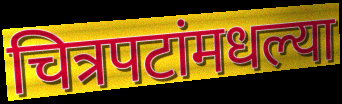
चित्रपटांमधल्या